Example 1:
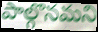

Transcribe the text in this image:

పాల్గొనమని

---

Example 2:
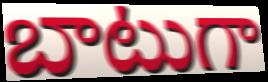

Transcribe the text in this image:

బాటుగా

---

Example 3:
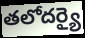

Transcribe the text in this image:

తలోదర్యై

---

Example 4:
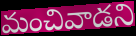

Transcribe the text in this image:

మంచివాడని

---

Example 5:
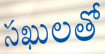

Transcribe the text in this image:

సఖులతో